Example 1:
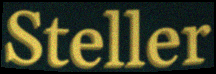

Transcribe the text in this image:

Steller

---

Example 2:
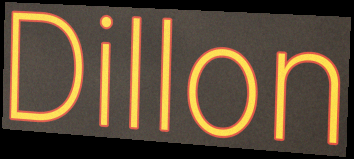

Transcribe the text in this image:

Dillon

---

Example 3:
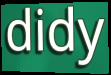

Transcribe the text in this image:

didy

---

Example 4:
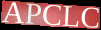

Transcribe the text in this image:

APCLC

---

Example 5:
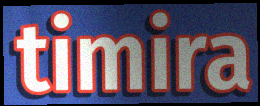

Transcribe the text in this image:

timira